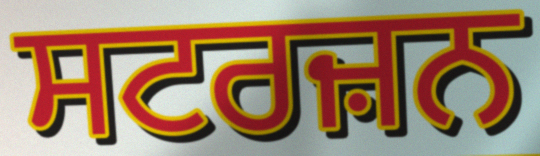
ਸਟਰਜ਼ਨ